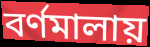
বর্ণমালায়